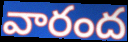
వారంద